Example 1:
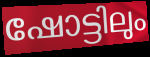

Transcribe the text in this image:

ഷോട്ടിലും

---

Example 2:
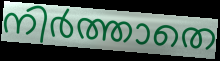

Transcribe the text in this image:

നിർത്താതെ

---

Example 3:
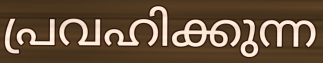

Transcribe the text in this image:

പ്രവഹിക്കുന്ന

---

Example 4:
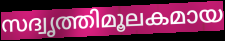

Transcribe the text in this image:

സദ്വൃത്തിമൂലകമായ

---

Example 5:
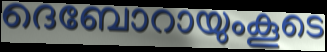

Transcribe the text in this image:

ദെബോറായുംകൂടെ